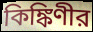
কিঙ্কিণীর